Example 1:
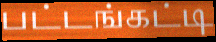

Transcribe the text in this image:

பட்டங்கட்டி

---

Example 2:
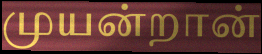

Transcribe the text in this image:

முயன்றான்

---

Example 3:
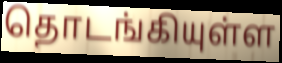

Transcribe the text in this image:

தொடங்கியுள்ள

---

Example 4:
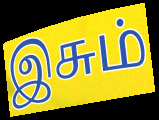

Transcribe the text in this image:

இசும்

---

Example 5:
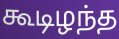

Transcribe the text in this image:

கூடிழந்த